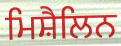
ਮਿਸ਼ੈਲਿਨ